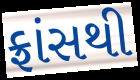
ફ્રાંસથી